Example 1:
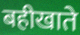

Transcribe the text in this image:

बहीखाते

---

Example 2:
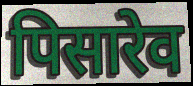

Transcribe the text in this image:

पिसारेव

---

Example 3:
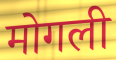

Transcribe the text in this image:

मोगली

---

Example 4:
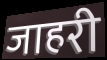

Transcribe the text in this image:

जाहरी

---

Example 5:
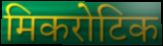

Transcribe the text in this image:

मिकरोटिक